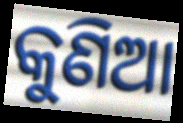
କୁଣିଆ